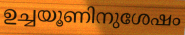
ഉച്ചയൂണിനുശേഷം